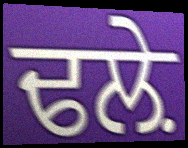
ਢਲ਼ੇ